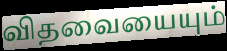
விதவையையும்